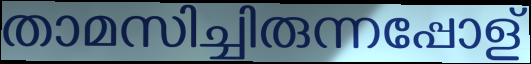
താമസിച്ചിരുന്നപ്പോള്